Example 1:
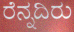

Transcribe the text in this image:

ರೆನ್ನದಿರು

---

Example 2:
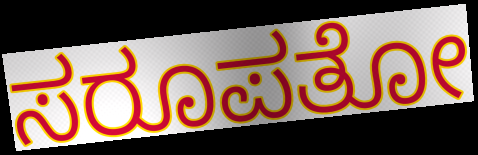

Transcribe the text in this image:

ಸರೂಪತೋ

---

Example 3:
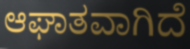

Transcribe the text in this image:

ಆಘಾತವಾಗಿದೆ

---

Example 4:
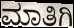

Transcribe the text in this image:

ಮಾತಿಗಿ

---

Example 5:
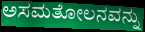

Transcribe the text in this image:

ಅಸಮತೋಲನವನ್ನು